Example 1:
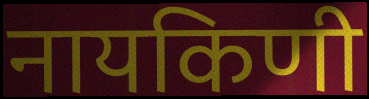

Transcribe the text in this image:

नायकिणी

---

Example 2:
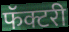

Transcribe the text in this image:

फॅक्टरी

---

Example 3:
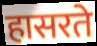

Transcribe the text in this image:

हासरते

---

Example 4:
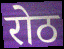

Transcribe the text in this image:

रोठ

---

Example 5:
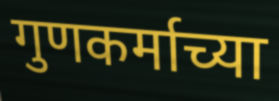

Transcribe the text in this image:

गुणकर्माच्या